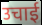
उचाई